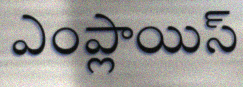
ఎంప్లాయిస్